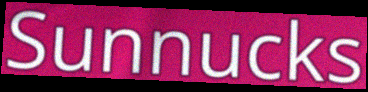
Sunnucks